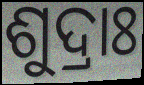
ଶୁଦ୍ରାଃ